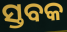
ସ୍ତବକ